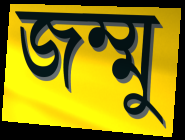
জম্মু